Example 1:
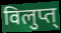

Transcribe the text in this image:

विलुप्त्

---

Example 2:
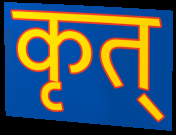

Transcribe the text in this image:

कृत्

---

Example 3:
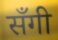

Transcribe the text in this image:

सँगी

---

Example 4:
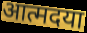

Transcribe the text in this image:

आत्मदया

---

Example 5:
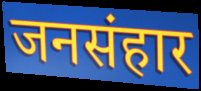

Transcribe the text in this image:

जनसंहार